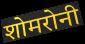
शोमरोनी